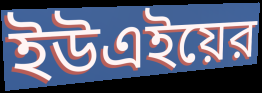
ইউএইয়ের